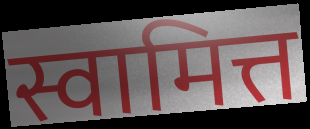
स्वामित्त